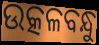
ଉତ୍କଳବନ୍ଧୁ